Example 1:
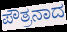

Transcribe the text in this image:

ಪೌತ್ರನಾದ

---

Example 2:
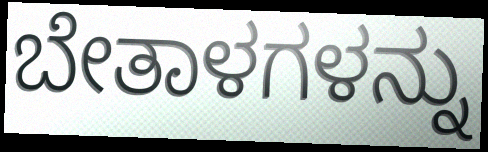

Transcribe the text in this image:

ಬೇತಾಳಗಳನ್ನು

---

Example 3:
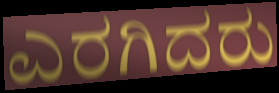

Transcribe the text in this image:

ಎರಗಿದರು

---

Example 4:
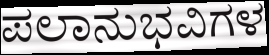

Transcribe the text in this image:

ಪಲಾನುಭವಿಗಳ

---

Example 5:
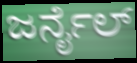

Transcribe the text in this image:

ಜರ್ನೈಲ್